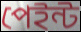
পেইন্ট